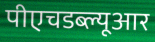
पीएचडब्ल्यूआर